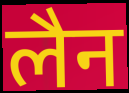
लैन